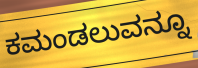
ಕಮಂಡಲುವನ್ನೂ